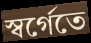
স্বর্গেতে